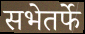
सभेतर्फे